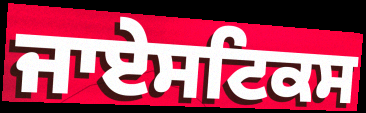
ਜਾਏਸਟਿਕਸ